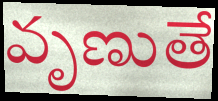
వృణుతే